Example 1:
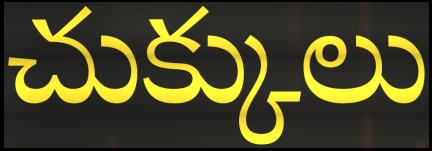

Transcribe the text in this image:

చుక్కులు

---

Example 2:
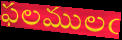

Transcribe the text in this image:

ఫలములఁ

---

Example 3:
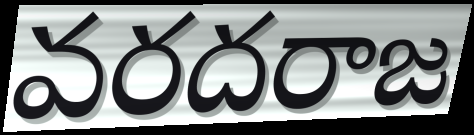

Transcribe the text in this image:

వరదరాజ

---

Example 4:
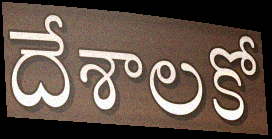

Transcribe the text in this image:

దేశాలకో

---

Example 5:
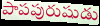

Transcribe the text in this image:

పాపపురుషుడు